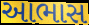
આભાસ